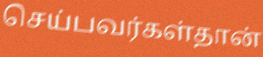
செய்பவர்கள்தான்